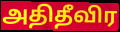
அதிதீவிர